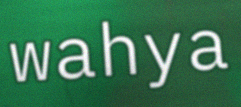
wahya